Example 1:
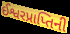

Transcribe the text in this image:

ઈશ્વરપ્રાપ્તિની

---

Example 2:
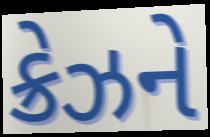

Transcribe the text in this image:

ક્રેઝને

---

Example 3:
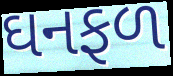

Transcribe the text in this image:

ઘનફળ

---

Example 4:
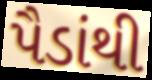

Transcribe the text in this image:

પૈડાંથી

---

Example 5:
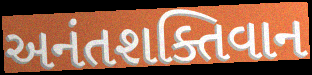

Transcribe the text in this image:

અનંતશક્તિવાન